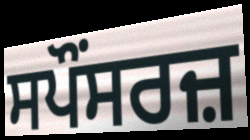
ਸਪੌਂਸਰਜ਼